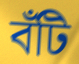
বঁটি